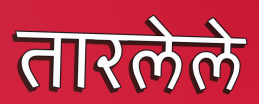
तारलेले